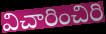
విచారించిరి